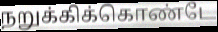
நறுக்கிக்கொண்டே